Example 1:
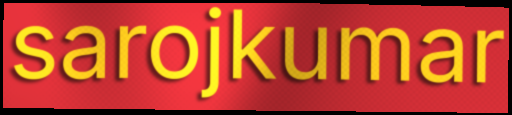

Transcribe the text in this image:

sarojkumar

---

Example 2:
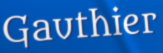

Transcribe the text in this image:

Gauthier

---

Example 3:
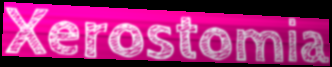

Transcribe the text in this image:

Xerostomia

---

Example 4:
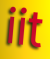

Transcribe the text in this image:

iit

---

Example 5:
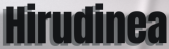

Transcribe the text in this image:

Hirudinea